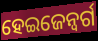
ହେଇଜେନ୍ବର୍ଗ